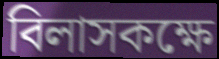
বিলাসকক্ষে